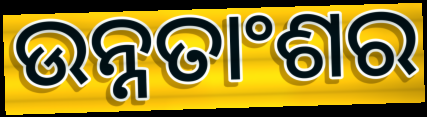
ଉନ୍ନତାଂଶର